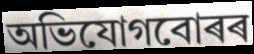
অভিযোগবোৰৰ